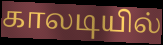
காலடியில்